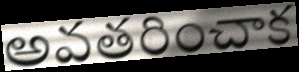
అవతరించాక